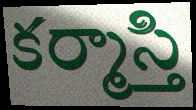
కర్మాస్తి